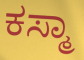
ಕಸ್ಮಾ